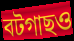
বটগাছও